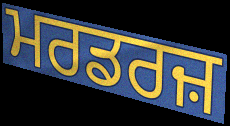
ਮਰਡਰਜ਼